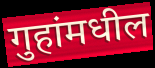
गुहांमधील